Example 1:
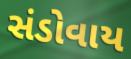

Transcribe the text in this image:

સંડોવાય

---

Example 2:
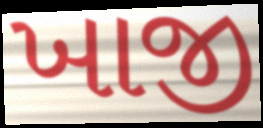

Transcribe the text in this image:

ખાજી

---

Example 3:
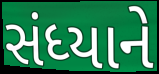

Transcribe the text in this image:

સંધ્યાને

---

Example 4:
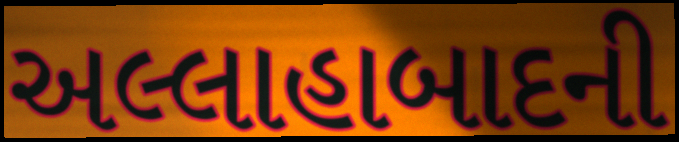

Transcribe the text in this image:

અલ્લાહાબાદની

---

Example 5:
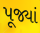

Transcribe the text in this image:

પૂજ્યાં